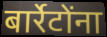
बार्रेटोंना